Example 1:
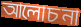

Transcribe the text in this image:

আলোচনা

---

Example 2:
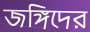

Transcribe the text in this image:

জঙ্গিদের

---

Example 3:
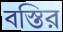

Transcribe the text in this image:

বস্তির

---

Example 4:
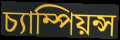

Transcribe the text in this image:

চ্যাম্পিয়ন্স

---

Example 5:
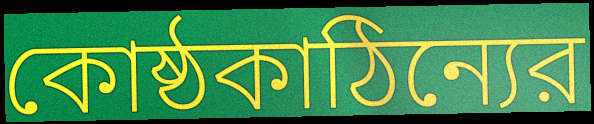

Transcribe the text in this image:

কোষ্ঠকাঠিন্যের